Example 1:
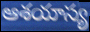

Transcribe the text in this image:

ఆశయాస్య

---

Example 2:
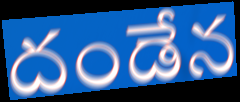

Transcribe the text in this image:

దండేన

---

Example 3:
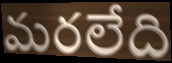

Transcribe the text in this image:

మరలేది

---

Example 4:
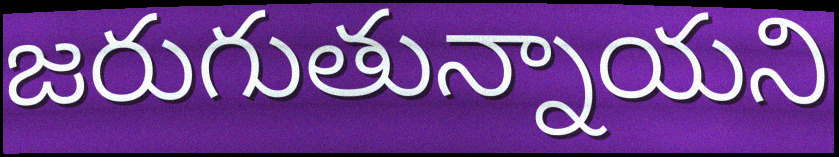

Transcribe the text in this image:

జరుగుతున్నాయని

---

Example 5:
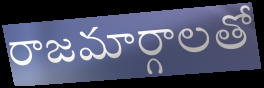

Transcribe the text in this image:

రాజమార్గాలతో